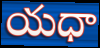
యధా